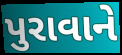
પુરાવાને